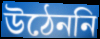
উঠেননি